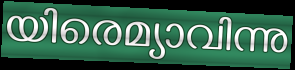
യിരെമ്യാവിന്നു